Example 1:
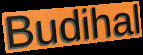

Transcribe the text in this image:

Budihal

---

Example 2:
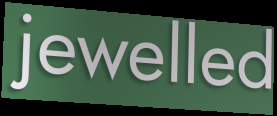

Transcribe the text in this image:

jewelled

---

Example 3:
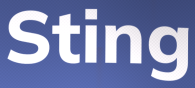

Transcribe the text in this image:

Sting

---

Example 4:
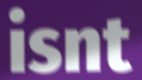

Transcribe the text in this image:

isnt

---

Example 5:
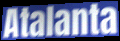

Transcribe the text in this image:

Atalanta